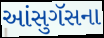
આંસુગૅસના